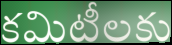
కమిటీలకు